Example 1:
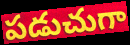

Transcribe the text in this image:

పడుచుగా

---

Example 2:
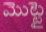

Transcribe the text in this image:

మొట్టై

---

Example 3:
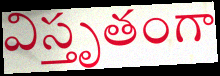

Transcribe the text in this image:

విస్తృతంగా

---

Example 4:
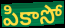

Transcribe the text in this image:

పికాసో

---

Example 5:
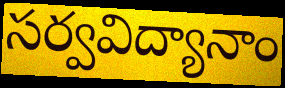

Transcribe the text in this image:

సర్వవిద్యానాం